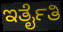
ಇರ್ತೈತಿ